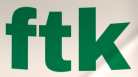
ftk